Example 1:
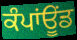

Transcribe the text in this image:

ਕੰਪਾਂਊਂਡ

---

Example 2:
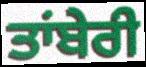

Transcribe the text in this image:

ਤਾਂਬੇਰੀ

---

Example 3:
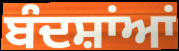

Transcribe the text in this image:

ਬੰਦਸ਼ਾਂਆਂ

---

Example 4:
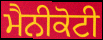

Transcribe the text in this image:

ਮੈਨੀਕੋਟੀ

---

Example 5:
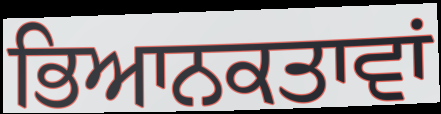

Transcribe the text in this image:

ਭਿਆਨਕਤਾਵਾਂ